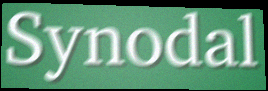
Synodal